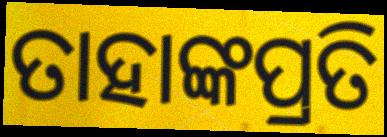
ତାହାଙ୍କପ୍ରତି